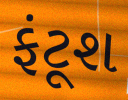
ફંટૂશ